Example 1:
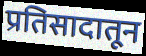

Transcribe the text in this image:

प्रतिसादातून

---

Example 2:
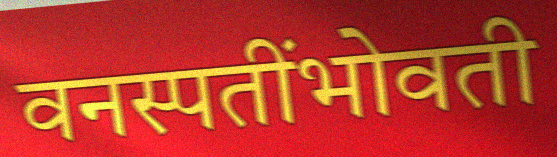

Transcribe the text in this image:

वनस्पतींभोवती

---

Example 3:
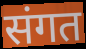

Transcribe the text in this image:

संगत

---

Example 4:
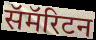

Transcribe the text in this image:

सॅमॅरिटन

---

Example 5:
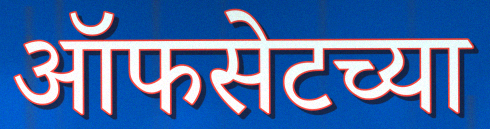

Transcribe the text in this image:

ऑफसेटच्या